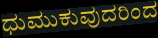
ಧುಮುಕುವುದರಿಂದ